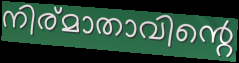
നിര്മാതാവിന്റെ